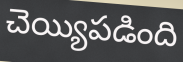
చెయ్యిపడింది